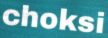
choksi